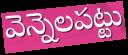
వెన్నెలపట్టు